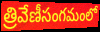
త్రివేణీసంగమంలో